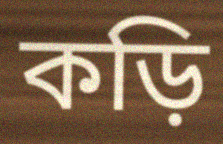
কড়ি